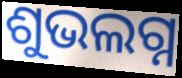
ଶୁଭଲଗ୍ନ